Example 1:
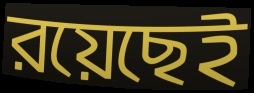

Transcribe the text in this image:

রয়েছেই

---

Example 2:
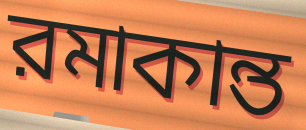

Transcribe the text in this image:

রমাকান্ত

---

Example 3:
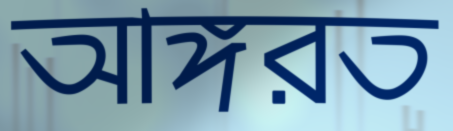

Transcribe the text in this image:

আঙ্গরত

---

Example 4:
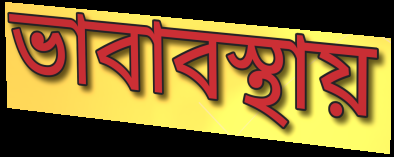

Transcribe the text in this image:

ভাবাবস্থায়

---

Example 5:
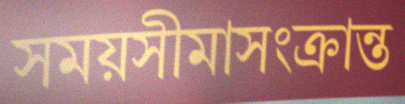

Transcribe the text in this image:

সময়সীমাসংক্রান্ত